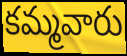
కమ్మవారు